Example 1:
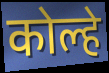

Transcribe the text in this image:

कोल्हे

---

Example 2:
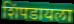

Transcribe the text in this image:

शिंपडायला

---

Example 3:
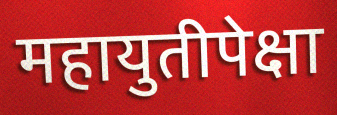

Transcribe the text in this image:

महायुतीपेक्षा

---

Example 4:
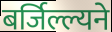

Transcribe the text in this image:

बर्जिल्ल्यने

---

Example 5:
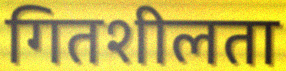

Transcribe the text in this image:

गितशीलता